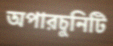
অপারচুনিটি